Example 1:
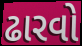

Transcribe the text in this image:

ઢારવો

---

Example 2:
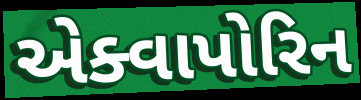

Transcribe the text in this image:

એક્વાપોરિન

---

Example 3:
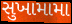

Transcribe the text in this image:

સુખામામા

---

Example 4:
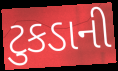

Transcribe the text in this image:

ટુકડાની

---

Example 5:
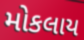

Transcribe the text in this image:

મોકલાય